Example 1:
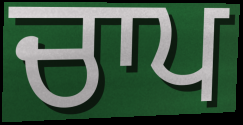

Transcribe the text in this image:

ਚਾਪ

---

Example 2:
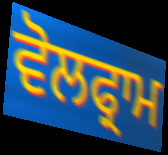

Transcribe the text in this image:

ਵੋਲਫ੍ਰਾਮ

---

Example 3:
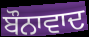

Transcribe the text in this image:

ਬੌਨਾਵਾਦ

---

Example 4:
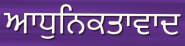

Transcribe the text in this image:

ਆਧੁਨਿਕਤਾਵਾਦ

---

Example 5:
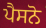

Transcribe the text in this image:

ਪੈਸਨੋ